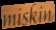
miskin